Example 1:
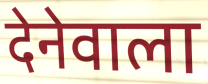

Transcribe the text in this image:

देनेवाला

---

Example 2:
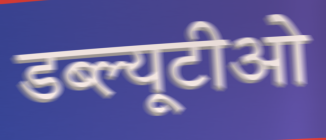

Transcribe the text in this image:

डब्ल्यूटीओ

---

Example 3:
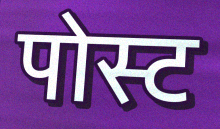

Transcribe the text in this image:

पोस्ट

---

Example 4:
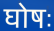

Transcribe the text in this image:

घोषः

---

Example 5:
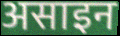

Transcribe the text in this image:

असाइन